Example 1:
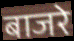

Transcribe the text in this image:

बाजरे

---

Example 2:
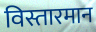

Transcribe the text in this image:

विस्तारमान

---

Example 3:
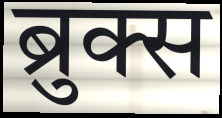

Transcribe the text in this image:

ब्रुक्‍स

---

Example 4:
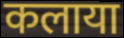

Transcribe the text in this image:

कलाया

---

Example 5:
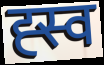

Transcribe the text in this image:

ह्स्व